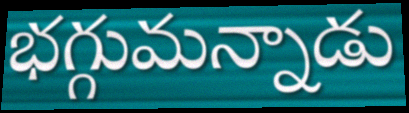
భగ్గుమన్నాడు